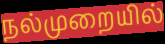
நல்முறையில்